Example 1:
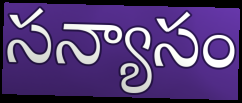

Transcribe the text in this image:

సన్యాసం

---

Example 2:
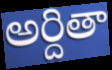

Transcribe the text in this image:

అర్దితా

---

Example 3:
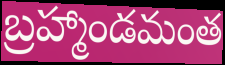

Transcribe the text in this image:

బ్రహ్మాండమంత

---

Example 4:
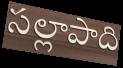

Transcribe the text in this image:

సల్లాపాది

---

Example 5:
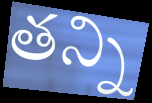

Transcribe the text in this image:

తన్ని